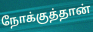
நோக்குத்தான்